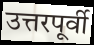
उत्तरपूर्वी